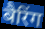
बैरिंग